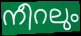
നീറലും